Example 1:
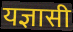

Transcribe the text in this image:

यज्ञासी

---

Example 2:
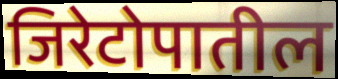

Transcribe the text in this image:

जिरेटोपातील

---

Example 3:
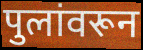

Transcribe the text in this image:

पुलांवरून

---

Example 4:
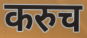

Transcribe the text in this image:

करुच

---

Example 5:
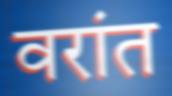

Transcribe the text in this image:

वरांत